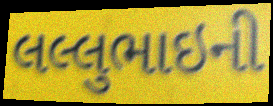
લલ્લુભાઇની